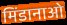
मिंडानाओ